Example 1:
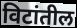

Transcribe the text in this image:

विटांतील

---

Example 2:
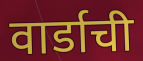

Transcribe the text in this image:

वार्डाची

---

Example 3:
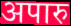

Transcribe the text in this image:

अपारु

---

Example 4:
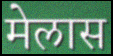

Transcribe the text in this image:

मेलास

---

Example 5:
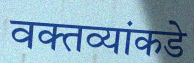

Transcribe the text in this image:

वक्तव्यांकडे